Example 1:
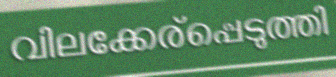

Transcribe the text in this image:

വിലക്കേര്പ്പെടുത്തി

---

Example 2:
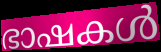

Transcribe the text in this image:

ഭാഷകൾ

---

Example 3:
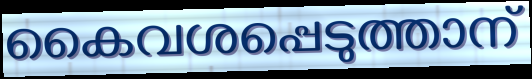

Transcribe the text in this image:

കൈവശപ്പെടുത്താന്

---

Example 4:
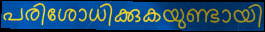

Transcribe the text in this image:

പരിശോധിക്കുകയുണ്ടായി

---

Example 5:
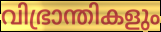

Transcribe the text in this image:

വിഭ്രാന്തികളും